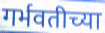
गर्भवतीच्या